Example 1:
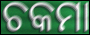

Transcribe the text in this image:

ଚକମା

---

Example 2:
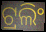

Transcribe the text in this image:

ଟ୍ରଲିଂ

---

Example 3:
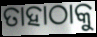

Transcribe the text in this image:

ତାହାଠାକୁ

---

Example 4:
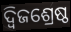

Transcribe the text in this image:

ଦ୍ୱିଜଶ୍ରେଷ୍ଠ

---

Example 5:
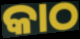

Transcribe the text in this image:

କାଠ